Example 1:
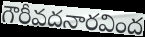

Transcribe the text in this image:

గౌరీవదనారవింద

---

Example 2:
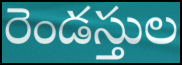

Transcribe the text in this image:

రెండస్తుల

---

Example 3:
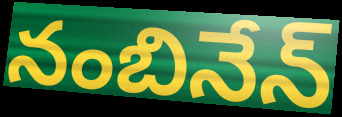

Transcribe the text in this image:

నంబినేన్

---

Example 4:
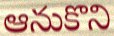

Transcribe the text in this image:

ఆనుకొని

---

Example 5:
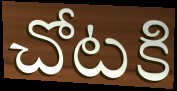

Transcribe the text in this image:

చోటకి